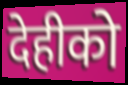
देहीको